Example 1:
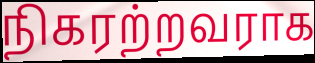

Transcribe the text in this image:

நிகரற்றவராக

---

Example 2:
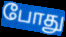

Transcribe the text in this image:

போது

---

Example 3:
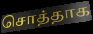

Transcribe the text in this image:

சொத்தாக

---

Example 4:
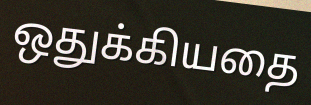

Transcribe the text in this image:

ஒதுக்கியதை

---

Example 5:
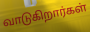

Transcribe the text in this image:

வாடுகிறார்கள்